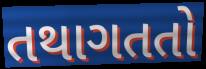
તથાગતતો